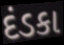
દંડકા